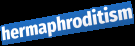
hermaphroditism